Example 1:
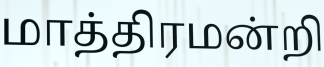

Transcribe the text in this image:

மாத்திரமன்றி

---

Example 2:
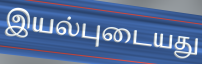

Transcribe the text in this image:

இயல்புடையது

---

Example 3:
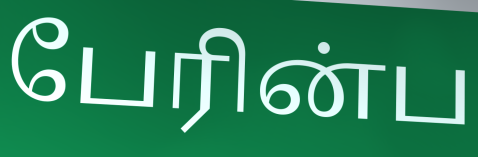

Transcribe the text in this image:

பேரின்ப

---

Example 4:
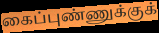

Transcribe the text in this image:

கைப்புண்ணுக்குக்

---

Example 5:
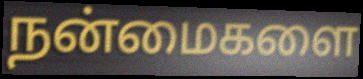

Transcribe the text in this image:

நன்மைகளை